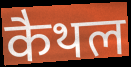
कैथल